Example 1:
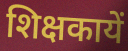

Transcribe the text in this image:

शिक्षकायें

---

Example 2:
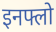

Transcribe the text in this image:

इनफ्लो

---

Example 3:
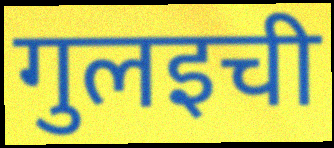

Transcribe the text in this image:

गुलइची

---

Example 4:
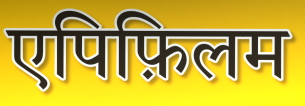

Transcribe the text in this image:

एपिफ़िलम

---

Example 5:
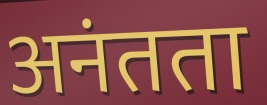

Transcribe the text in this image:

अनंतता